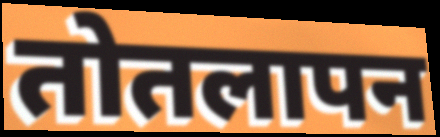
तोतलापन